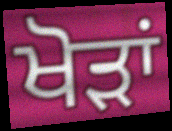
ਖੋੜਾਂ